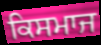
ਕਿਸਮਾਜ